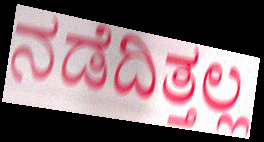
ನಡೆದಿತ್ತಲ್ಲ